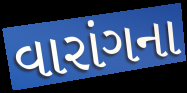
વારાંગના